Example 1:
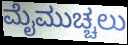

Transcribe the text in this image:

ಮೈಮುಚ್ಚಲು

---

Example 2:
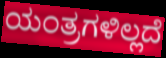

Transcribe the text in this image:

ಯಂತ್ರಗಳಿಲ್ಲದೆ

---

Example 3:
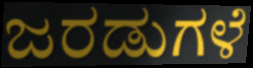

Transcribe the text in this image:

ಜರಡುಗಳೆ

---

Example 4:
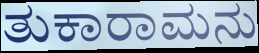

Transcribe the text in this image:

ತುಕಾರಾಮನು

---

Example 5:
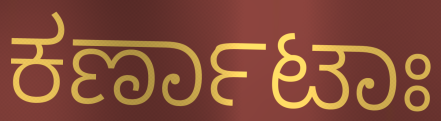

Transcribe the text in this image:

ಕರ್ಣಾಟಾಃ